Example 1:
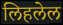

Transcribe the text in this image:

लिहलेल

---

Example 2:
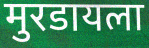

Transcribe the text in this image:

मुरडायला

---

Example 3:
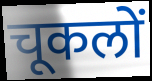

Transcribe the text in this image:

चूकलों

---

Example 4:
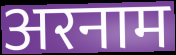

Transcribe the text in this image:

अरनाम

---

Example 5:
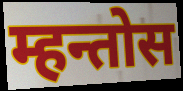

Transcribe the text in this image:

म्हन्तोस